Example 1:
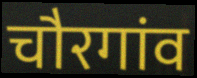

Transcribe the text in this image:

चौरगांव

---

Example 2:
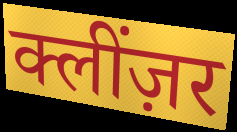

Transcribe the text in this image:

क्लींज़र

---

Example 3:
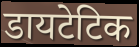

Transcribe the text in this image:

डायटेटिक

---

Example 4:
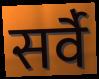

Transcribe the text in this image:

सर्वै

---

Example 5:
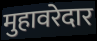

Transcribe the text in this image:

मुहावरेदार